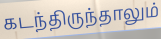
கடந்திருந்தாலும்